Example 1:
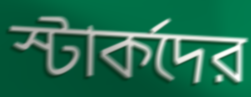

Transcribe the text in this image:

স্টার্কদের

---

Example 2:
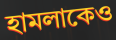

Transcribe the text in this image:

হামলাকেও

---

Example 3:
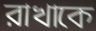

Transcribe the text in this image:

রাখাকে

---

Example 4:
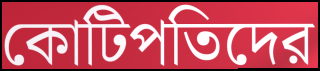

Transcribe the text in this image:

কোটিপতিদের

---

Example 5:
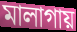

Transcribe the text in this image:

মালাগায়